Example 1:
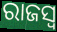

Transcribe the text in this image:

ରାଜସ୍ୱ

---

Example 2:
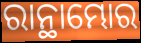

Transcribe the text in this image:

ରାନ୍ଥାମ୍ଭୋର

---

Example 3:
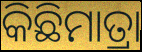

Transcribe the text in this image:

କିଛିମାତ୍ରା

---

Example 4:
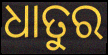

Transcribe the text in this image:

ଧାତୁର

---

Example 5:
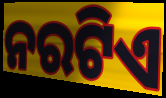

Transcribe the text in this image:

ନରଟିଏ